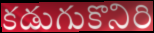
కడుగుకొనిరి